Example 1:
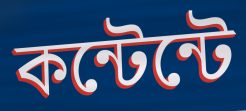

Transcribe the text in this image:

কন্টেন্টে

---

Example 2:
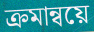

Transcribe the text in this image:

ক্রমান্বয়ে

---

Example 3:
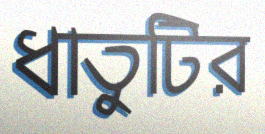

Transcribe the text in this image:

ধাতুটির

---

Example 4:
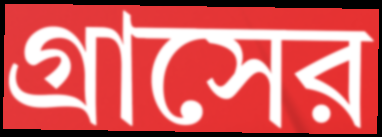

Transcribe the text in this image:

গ্রাসের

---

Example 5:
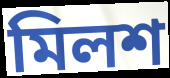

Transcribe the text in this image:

মিলশ